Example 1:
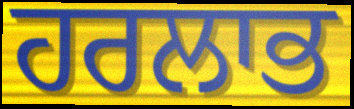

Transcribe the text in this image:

ਹਰਲਾਭ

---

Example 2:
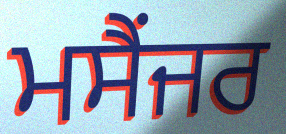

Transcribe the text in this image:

ਮਸੈਂਜਰ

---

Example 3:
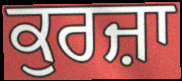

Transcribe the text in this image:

ਕੁਰਜ਼ਾ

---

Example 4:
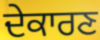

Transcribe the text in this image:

ਦੇਕਾਰਣ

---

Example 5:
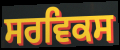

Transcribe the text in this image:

ਸਰਵਿਕਸ